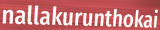
nallakurunthokai